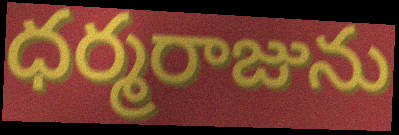
ధర్మరాజును